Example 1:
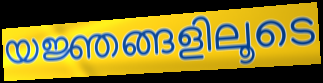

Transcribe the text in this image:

യജ്ഞങ്ങളിലൂടെ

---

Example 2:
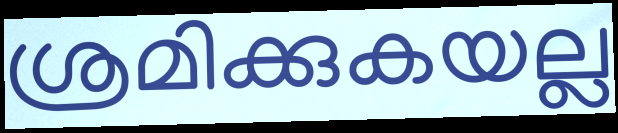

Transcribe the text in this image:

ശ്രമിക്കുകയല്ല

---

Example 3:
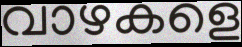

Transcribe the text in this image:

വാഴകളെ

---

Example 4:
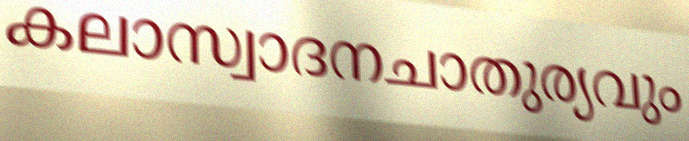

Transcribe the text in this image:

കലാസ്വാദനചാതുര്യവും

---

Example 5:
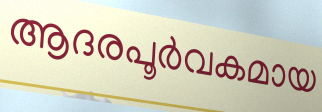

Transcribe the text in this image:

ആദരപൂർവകമായ